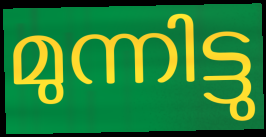
മുന്നിട്ടു